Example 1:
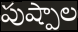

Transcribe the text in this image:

పుష్పాల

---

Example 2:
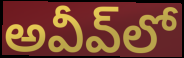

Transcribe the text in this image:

అవీవ్‌లో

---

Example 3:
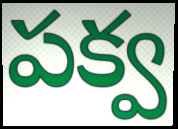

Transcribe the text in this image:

పక్వ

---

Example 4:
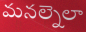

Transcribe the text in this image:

మనల్నెలా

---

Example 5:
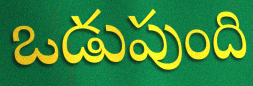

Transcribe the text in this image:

ఒడుపుంది